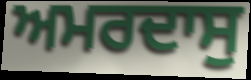
ਅਮਰਦਾਸੁ